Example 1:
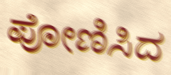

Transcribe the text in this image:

ಪೋಣಿಸಿದ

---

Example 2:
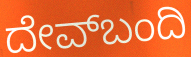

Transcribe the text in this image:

ದೇವ್‌ಬಂದಿ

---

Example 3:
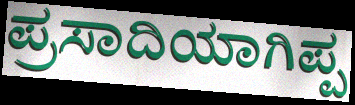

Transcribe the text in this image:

ಪ್ರಸಾದಿಯಾಗಿಪ್ಪ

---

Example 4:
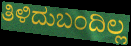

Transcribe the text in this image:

ತಿಳಿದುಬಂದಿಲ್ಲ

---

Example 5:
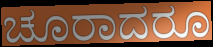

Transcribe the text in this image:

ಚೂರಾದರೂ